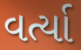
વર્ત્યા